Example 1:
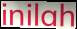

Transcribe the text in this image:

inilah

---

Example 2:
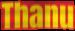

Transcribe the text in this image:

Thanu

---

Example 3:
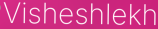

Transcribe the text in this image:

Visheshlekh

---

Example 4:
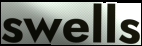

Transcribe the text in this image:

swells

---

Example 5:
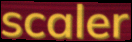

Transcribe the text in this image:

scaler